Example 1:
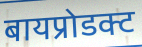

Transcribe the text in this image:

बायप्रोडक्ट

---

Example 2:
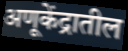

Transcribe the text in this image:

अणूकेंद्रातील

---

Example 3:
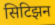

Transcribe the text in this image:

सिटिझन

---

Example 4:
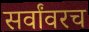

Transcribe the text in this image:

सर्वांवरच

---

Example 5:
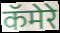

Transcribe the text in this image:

कॅमेरे